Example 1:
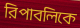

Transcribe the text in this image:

রিপাবলিকে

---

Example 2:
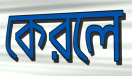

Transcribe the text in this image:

কেরলে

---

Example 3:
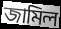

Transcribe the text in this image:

জামিল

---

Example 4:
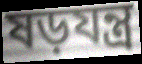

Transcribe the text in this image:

ষড়যন্ত্র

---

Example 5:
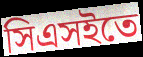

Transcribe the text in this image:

সিএসইতে